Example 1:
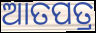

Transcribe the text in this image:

ଆତପତ୍ର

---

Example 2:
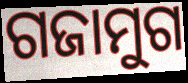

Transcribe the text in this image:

ଗଜାମୁଗ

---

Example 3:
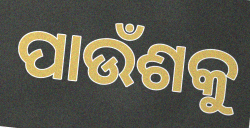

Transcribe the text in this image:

ପାଉଁଶକୁ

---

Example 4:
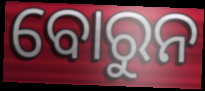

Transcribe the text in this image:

ବୋରୁନ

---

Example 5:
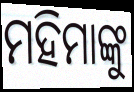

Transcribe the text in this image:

ମହିମାଙ୍କୁ